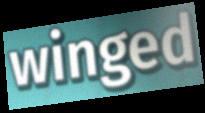
winged